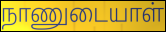
நாணுடையாள்